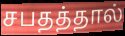
சபதத்தால்